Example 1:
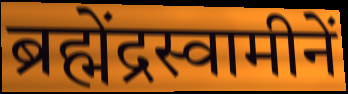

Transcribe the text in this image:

ब्रह्मेंद्रस्वामीनें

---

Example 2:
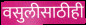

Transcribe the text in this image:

वसुलीसाठीही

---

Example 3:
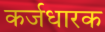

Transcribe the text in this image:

कर्जधारक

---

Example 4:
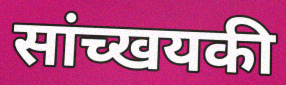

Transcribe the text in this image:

सांच्खयकी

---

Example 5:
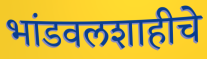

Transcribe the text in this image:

भांडवलशाहीचे